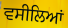
ਵਸੀਲਿਆਂ